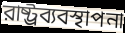
রাষ্ট্রব্যবস্থাপনা